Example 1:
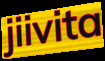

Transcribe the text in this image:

jiivita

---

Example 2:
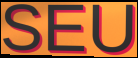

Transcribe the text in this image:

SEU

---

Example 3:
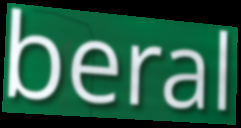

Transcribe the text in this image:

beral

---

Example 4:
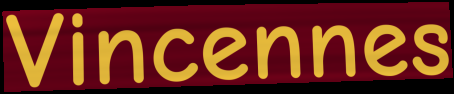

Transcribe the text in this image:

Vincennes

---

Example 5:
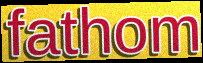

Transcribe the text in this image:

fathom